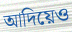
আদিয়েও